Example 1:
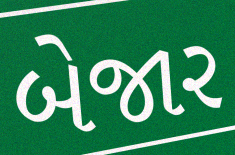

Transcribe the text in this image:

બેજાર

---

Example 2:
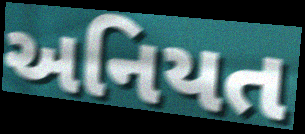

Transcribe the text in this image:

અનિયત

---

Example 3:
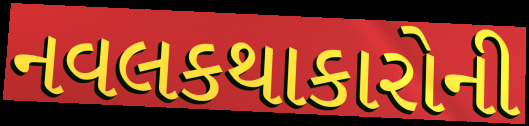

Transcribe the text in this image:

નવલકથાકારોની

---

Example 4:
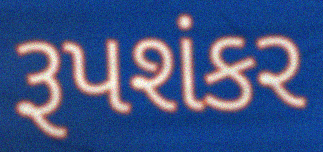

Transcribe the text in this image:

રૂપશંકર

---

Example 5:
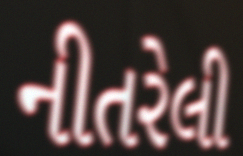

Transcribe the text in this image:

નીતરેલી